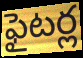
ఫైటర్ల